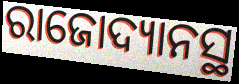
ରାଜୋଦ୍ୟାନସ୍ଥ